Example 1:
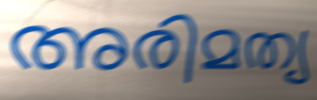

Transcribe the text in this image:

അരിമത്യ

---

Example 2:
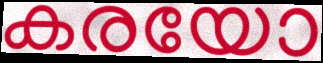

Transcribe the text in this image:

കരയോ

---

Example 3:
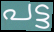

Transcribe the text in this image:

പട്ട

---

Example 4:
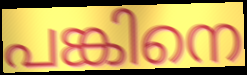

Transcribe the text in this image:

പങ്കിനെ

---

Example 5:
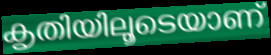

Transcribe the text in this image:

കൃതിയിലൂടെയാണ്